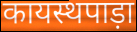
कायस्थपाड़ा